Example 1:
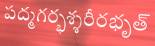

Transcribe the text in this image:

పద్మగర్భశ్శరీరభృత్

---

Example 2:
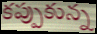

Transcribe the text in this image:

కప్పుకున్న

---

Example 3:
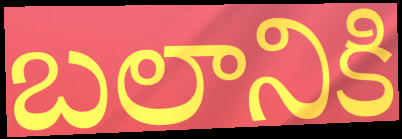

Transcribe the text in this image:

బలానికి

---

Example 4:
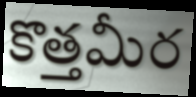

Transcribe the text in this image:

కొత్తమీర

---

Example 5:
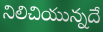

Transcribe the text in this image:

నిలిచియున్నదే